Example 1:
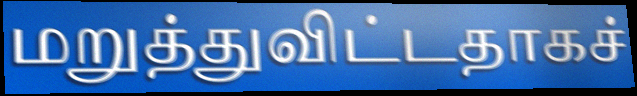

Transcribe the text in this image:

மறுத்துவிட்டதாகச்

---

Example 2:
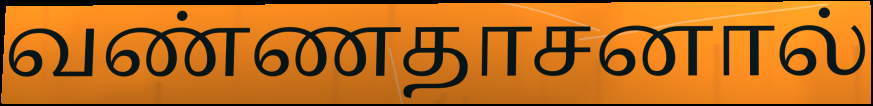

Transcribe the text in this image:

வண்ணதாசனால்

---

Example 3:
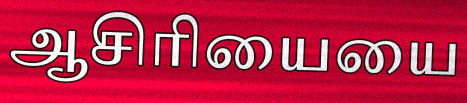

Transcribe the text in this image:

ஆசிரியையை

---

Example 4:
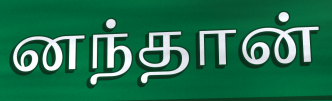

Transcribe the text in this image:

னந்தான்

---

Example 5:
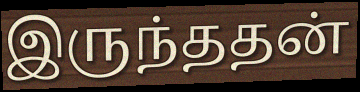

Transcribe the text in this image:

இருந்ததன்